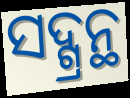
ସଦ୍ଗ୍ରନ୍ଥ